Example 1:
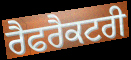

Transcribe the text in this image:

ਰੈਫਰੈਕਟਰੀ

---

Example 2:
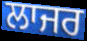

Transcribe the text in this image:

ਲਾਜਰ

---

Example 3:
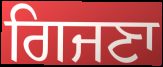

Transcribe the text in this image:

ਗਿਜਣਾ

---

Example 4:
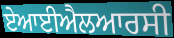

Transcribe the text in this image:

ਏਆਈਐਲਆਰਸੀ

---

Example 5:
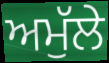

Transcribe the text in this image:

ਅਮੁੱਲੇ